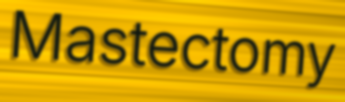
Mastectomy